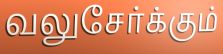
வலுசேர்க்கும்